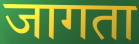
जागता